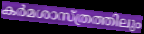
കർമശാസ്ത്രത്തിലും